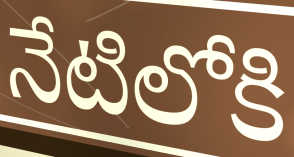
నేటిలోకి